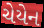
ચેયેન